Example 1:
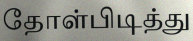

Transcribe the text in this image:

தோள்பிடித்து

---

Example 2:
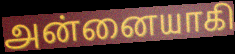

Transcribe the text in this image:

அன்னையாகி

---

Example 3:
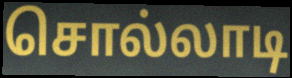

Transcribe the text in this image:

சொல்லாடி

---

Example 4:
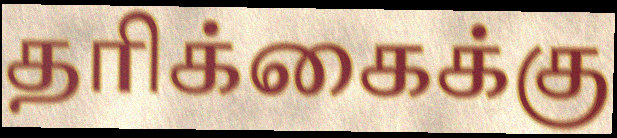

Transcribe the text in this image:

தரிக்கைக்கு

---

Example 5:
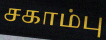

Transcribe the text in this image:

சகாம்பு